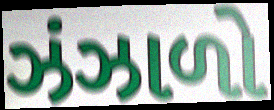
ઝંઝાળો